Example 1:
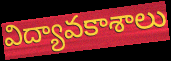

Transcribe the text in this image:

విద్యావకాశాలు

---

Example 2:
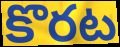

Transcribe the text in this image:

కొరట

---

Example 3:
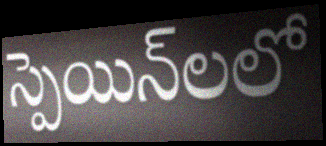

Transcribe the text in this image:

స్పెయిన్‌లలో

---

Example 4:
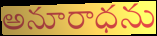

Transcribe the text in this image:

అనూరాధను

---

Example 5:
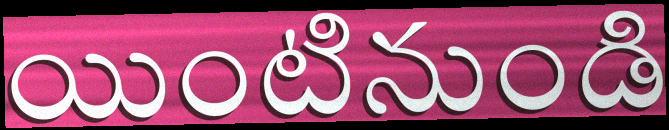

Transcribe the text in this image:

యింటినుండి